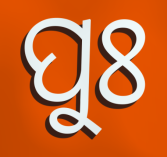
ପୁଃ